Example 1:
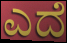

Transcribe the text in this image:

ಎದೆ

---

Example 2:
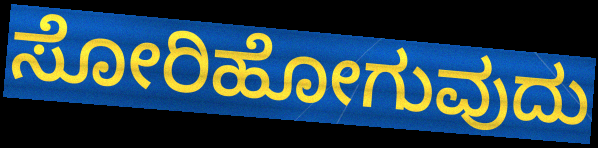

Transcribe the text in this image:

ಸೋರಿಹೋಗುವುದು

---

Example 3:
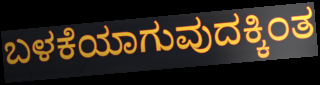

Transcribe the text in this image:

ಬಳಕೆಯಾಗುವುದಕ್ಕಿಂತ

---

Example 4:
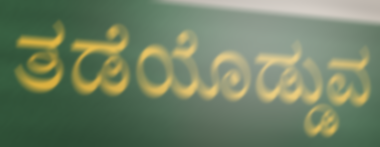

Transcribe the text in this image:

ತಡೆಯೊಡ್ಡುವ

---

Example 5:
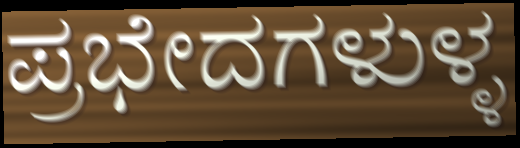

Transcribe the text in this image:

ಪ್ರಭೇದಗಳುಳ್ಳ